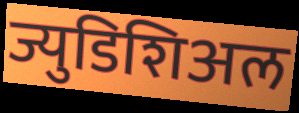
ज्युडिशिअल